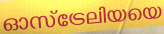
ഓസ്ട്രേലിയയെ